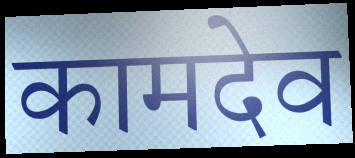
कामदेव